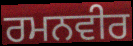
ਰਮਨਵੀਰ